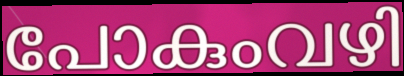
പോകുംവഴി